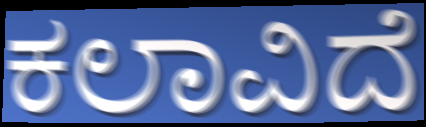
ಕಲಾವಿದೆ